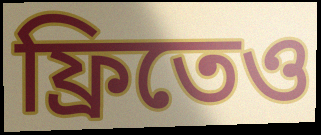
ফ্রিতেও